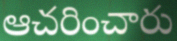
ఆచరించారు